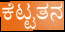
ಕೆಟ್ಟತನ